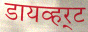
डायव्हर्ट